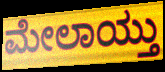
ಮೇಲಾಯ್ತು